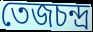
তেজচন্দ্র